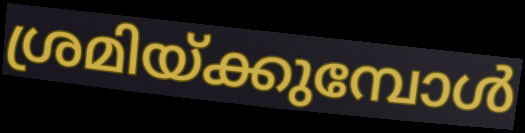
ശ്രമിയ്ക്കുമ്പോൾ